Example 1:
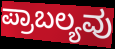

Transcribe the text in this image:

ಪ್ರಾಬಲ್ಯವು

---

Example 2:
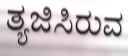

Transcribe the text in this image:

ತ್ಯಜಿಸಿರುವ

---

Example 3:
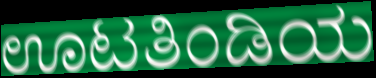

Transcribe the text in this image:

ಊಟತಿಂಡಿಯ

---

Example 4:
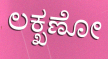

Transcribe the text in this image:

ಲಕ್ಖಣೋ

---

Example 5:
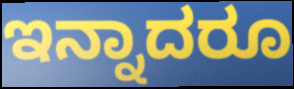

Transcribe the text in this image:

ಇನ್ನಾದರೂ